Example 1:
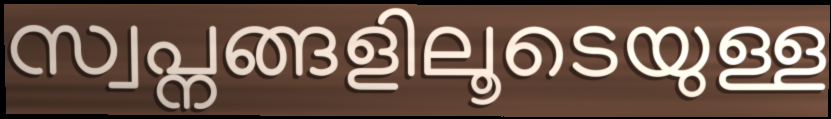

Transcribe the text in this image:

സ്വപ്നങ്ങളിലൂടെയുള്ള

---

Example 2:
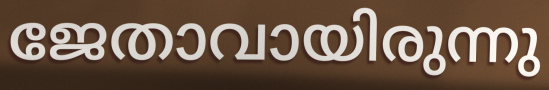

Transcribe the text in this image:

ജേതാവായിരുന്നു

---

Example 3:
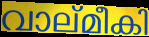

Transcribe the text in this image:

വാല്മീകി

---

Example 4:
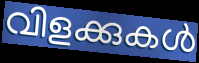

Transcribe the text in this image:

വിളക്കുകൾ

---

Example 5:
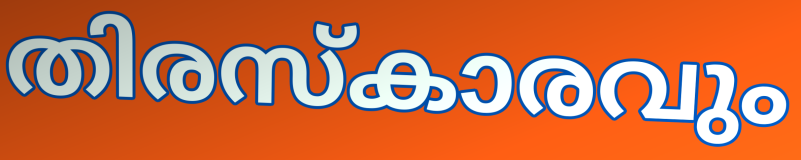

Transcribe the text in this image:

തിരസ്കാരവും